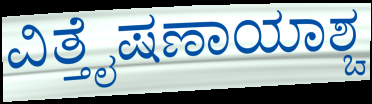
ವಿತ್ತೈಷಣಾಯಾಶ್ಚ